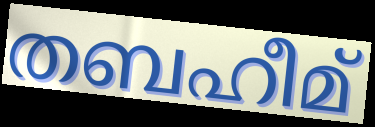
തബഹീമ്